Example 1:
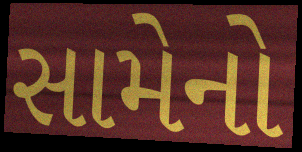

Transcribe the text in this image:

સામેનો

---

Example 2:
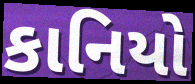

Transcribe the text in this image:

કાનિયો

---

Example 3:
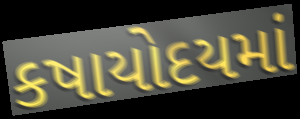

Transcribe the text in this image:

કષાયોદયમાં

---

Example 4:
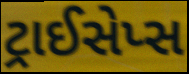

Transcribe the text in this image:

ટ્રાઈસેપ્સ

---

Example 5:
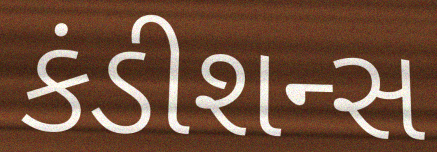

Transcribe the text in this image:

કંડીશન્સ